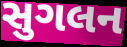
સુગલન